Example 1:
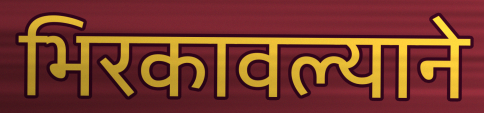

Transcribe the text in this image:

भिरकावल्याने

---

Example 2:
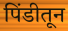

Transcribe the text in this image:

पिंडीतून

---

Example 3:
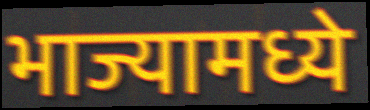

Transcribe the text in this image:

भाज्यामध्ये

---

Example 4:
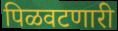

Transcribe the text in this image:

पिळवटणारी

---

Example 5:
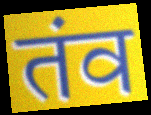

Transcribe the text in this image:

तंव